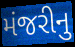
મંજરીનુ